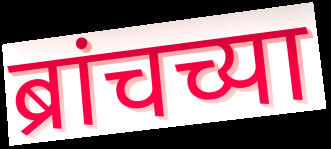
ब्रांचच्या